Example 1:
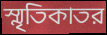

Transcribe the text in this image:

স্মৃতিকাতর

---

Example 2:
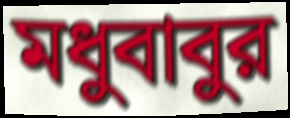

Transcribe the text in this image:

মধুবাবুর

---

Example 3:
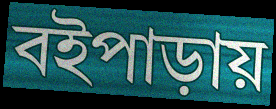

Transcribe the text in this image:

বইপাড়ায়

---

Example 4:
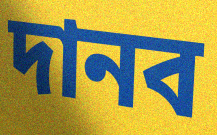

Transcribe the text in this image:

দানব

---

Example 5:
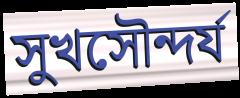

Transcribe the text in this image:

সুখসৌন্দর্য